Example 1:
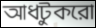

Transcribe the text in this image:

আধটুকরো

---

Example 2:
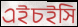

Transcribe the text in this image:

এইচইসি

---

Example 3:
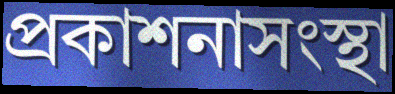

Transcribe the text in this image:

প্রকাশনাসংস্থা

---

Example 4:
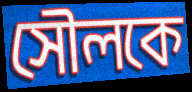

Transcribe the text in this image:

সৌলকে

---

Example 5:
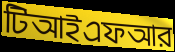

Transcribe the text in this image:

টিআইএফআর